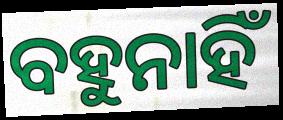
ବହୁନାହିଁ